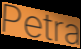
Petra